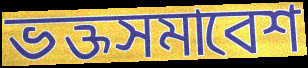
ভক্তসমাবেশ